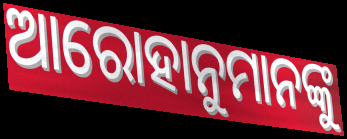
ଆରୋହାନୁମାନଙ୍କୁ